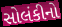
સોલંકીનો